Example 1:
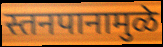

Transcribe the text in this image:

स्तनपानामुळे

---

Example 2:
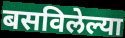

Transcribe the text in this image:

बसविलेल्या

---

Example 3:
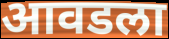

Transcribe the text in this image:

आवडला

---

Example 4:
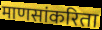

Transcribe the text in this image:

माणसांकरिता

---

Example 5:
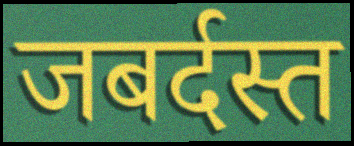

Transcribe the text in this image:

जबर्दस्त